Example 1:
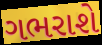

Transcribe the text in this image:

ગભરાશે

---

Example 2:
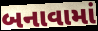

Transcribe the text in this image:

બનાવામાં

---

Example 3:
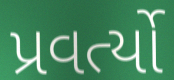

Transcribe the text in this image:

પ્રવર્ત્યો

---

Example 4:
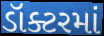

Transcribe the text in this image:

ડૉક્ટરમાં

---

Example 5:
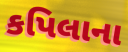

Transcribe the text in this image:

કપિલાના